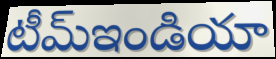
టీమ్ఇండియా